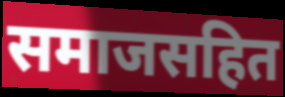
समाजसहित